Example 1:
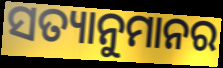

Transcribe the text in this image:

ସତ୍ୟାନୁମାନର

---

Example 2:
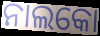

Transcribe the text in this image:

ନାଲକୋ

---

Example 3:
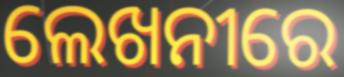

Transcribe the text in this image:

ଲେଖନୀରେ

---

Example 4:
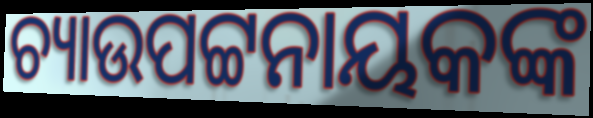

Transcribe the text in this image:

ଚ୍ୟାଉପଟ୍ଟନାୟକଙ୍କ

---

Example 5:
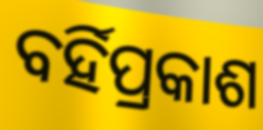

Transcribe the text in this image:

ବର୍ହିପ୍ରକାଶ